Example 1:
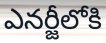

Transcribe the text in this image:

ఎనర్జీలోకి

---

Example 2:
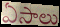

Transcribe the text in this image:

ఏసాలు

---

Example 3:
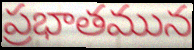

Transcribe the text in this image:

ప్రభాతమున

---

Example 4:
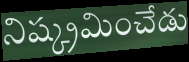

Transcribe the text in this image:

నిష్క్రమించేడు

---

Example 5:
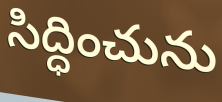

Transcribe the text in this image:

సిద్ధించును